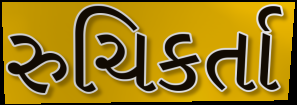
રુચિકર્તા